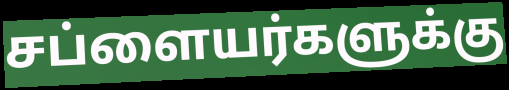
சப்ளையர்களுக்கு